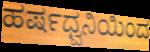
ಹರ್ಷಧ್ವನಿಯಿಂದ